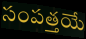
సంపత్తయే